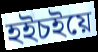
হইচইয়ে